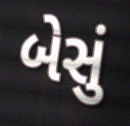
બેસું